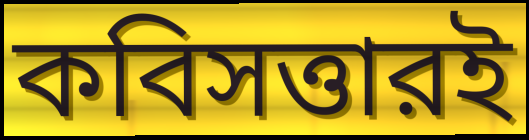
কবিসত্তারই